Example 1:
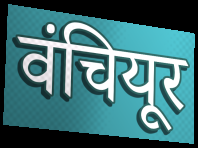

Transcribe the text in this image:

वंचियूर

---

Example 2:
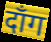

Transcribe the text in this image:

दाँग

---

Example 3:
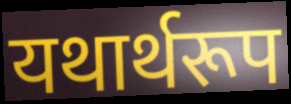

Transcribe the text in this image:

यथार्थरूप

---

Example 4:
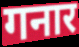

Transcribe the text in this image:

गनार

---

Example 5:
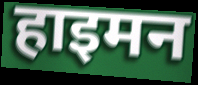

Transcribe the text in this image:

हाइमन